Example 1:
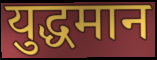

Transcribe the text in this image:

युद्धमान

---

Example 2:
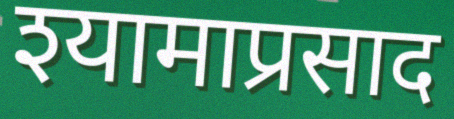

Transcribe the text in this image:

श्यामाप्रसाद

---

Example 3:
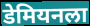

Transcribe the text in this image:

डेमियनला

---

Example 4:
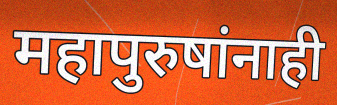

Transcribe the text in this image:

महापुरुषांनाही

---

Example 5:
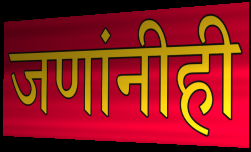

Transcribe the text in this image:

जणांनीही